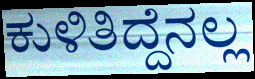
ಕುಳಿತಿದ್ದೆನಲ್ಲ